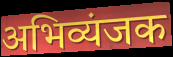
अभिव्यंजक